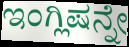
ಇಂಗ್ಲಿಷನ್ನೇ